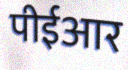
पीईआर